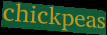
chickpeas